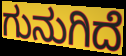
ಗುನುಗಿದೆ